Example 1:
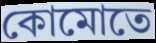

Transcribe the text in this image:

কোমোতে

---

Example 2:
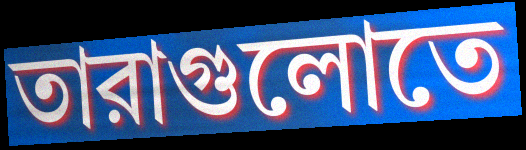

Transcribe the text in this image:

তারাগুলোতে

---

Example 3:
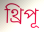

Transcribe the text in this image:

থ্রিপূ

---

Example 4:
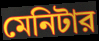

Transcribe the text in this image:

মেনিটার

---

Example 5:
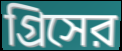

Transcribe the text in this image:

গ্রিসের